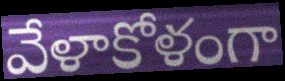
వేళాకోళంగా